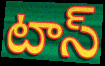
టాస్